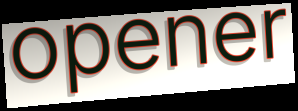
opener